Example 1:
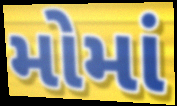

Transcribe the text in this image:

મોમાં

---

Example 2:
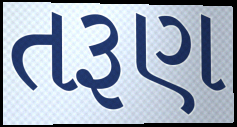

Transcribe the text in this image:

તરૂણ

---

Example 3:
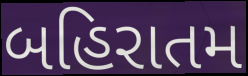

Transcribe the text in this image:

બહિરાતમ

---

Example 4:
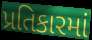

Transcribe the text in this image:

પ્રતિકારમાં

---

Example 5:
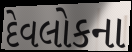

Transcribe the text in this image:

દેવલોકના